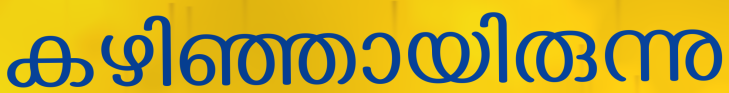
കഴിഞ്ഞായിരുന്നു